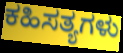
ಕಹಿಸತ್ಯಗಳು